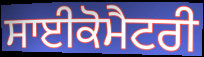
ਸਾਈਕੋਮੈਟਰੀ